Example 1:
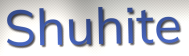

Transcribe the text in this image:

Shuhite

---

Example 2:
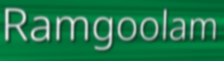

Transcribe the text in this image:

Ramgoolam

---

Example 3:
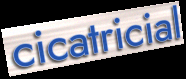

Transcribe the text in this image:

cicatricial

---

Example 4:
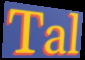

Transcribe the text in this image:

Tal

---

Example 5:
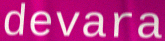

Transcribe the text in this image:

devara